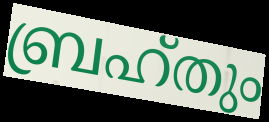
ബ്രഹ്തും